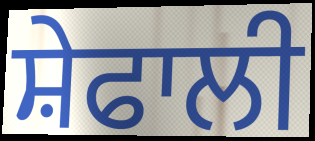
ਸ਼ੇਫਾਲੀ